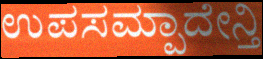
ಉಪಸಮ್ಪಾದೇನ್ತಿ